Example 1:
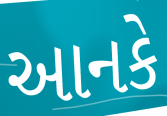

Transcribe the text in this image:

આનકે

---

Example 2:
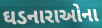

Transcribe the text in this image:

ઘડનારાઓના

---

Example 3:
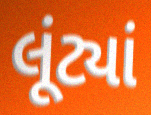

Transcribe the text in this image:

લૂંટ્યાં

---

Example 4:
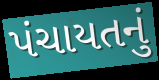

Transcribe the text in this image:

પંચાયતનું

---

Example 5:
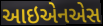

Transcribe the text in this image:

આઇએનએસ